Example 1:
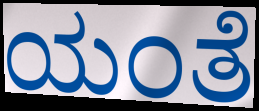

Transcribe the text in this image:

ಯಂತೆ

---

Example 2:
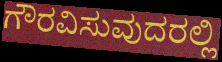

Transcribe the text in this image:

ಗೌರವಿಸುವುದರಲ್ಲಿ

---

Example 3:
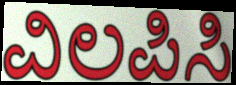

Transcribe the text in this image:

ವಿಲಪಿಸಿ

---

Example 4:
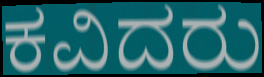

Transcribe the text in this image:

ಕವಿದರು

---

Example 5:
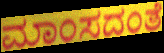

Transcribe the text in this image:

ಮಾಂಸದಂತೆ